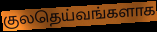
குலதெய்வங்களாக